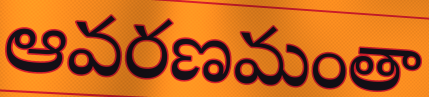
ఆవరణమంతా